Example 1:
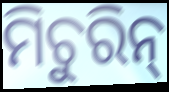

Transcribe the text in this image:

ମିଚୁରିନ୍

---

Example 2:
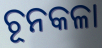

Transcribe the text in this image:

ଚୂନକଳା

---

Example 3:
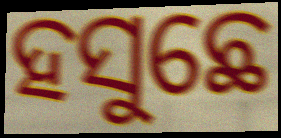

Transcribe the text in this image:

ହସୁଛେ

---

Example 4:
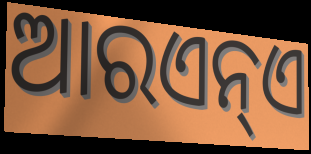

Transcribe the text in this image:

ଆରଏନ୍ଏ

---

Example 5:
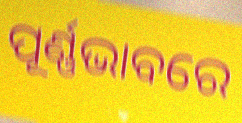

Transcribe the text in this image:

ପୂର୍ଣ୍ଣଭାବରେ